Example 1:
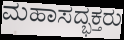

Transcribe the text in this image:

ಮಹಾಸದ್ಭಕ್ತರು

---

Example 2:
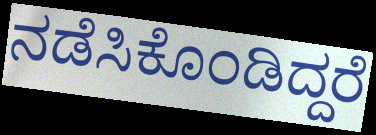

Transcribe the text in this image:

ನಡೆಸಿಕೊಂಡಿದ್ದರೆ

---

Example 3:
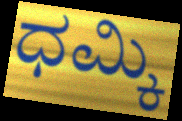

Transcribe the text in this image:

ಧಮ್ಕಿ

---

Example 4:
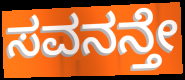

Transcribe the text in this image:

ಸವನನ್ತೇ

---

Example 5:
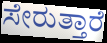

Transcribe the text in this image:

ಸೇರುತ್ತಾರೆ